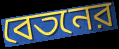
বেতনের